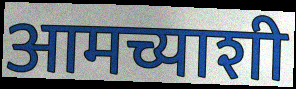
आमच्याशी